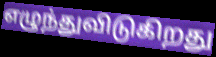
எழுந்துவிடுகிறது